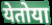
येतोया